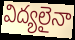
విద్యలైనా